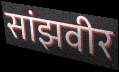
सांझवीर